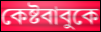
কেষ্টবাবুকে